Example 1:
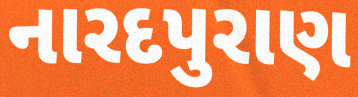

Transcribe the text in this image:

નારદપુરાણ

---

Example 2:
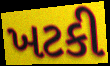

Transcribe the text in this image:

ખટકી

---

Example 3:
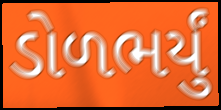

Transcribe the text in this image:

ડોળભર્યું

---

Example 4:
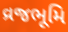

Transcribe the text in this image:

વ્રજભૂમિ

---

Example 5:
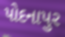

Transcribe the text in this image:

પોદનાપુર